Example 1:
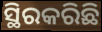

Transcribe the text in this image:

ସ୍ଥିରକରିଛି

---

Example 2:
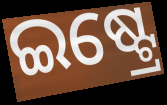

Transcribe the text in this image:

ଇଷ୍ଟ୍ରେ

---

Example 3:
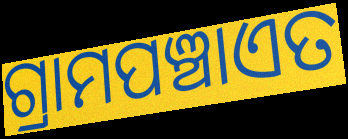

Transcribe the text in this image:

ଗ୍ରାମପଞ୍ଚାଏତ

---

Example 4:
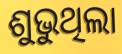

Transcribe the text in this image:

ଶୁଭୁଥିଲା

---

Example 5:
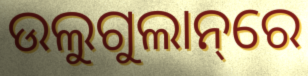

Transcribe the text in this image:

ଉଲୁଗୁଲାନ୍‌ରେ